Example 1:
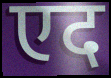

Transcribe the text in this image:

एद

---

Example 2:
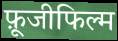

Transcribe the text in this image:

फ़ूजीफिल्म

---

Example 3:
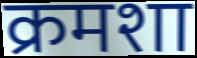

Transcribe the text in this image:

क्रमशा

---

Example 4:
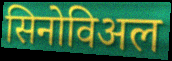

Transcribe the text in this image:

सिनोविअल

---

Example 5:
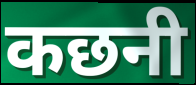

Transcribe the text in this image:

कछनी